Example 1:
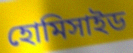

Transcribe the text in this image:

হোমিসাইড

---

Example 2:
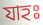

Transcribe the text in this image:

যাহঃ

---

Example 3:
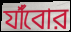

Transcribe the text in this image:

র্যাঁবোর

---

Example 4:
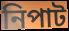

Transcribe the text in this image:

নিপাট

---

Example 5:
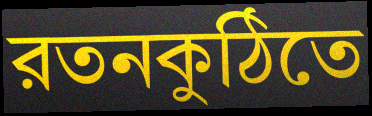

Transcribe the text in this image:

রতনকুঠিতে